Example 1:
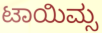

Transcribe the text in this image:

ಟಾಯಿಮ್ಸ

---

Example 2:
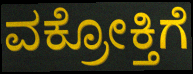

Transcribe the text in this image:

ವಕ್ರೋಕ್ತಿಗೆ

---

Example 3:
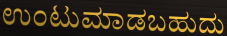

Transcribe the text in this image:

ಉಂಟುಮಾಡಬಹುದು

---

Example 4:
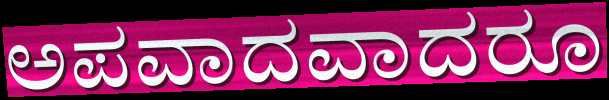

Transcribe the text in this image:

ಅಪವಾದವಾದರೂ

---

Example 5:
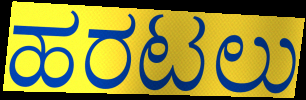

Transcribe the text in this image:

ಹರಟಲು